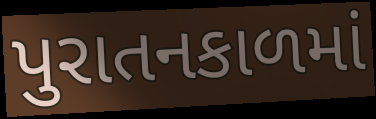
પુરાતનકાળમાં